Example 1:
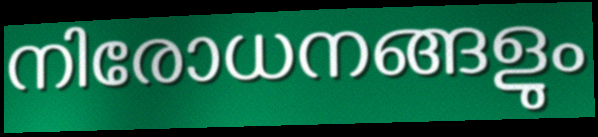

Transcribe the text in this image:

നിരോധനങ്ങളും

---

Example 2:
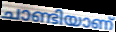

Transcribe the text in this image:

ചാണ്ടിയാണ്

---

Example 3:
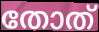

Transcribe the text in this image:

തോത്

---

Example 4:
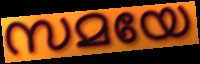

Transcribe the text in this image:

സമയേ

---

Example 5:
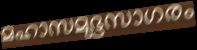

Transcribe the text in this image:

മഹാസമുദ്ദസാഗരം